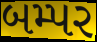
બમ્પર